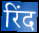
रिंद